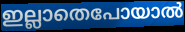
ഇല്ലാതെപോയാൽ